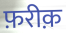
फ़रीक़